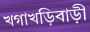
খগাখড়িবাড়ী